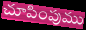
చూపింపుము